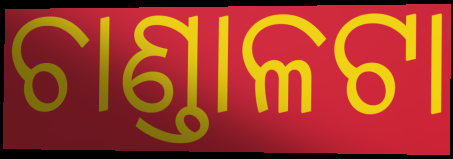
ଚାଣ୍ଡାଳଟା